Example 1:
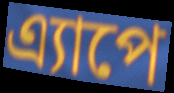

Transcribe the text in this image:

এ্যাপে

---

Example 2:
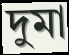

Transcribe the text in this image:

দুমা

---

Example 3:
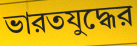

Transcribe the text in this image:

ভারতযুদ্ধের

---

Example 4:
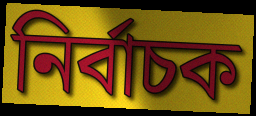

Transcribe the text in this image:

নির্বাচক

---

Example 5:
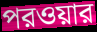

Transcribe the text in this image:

পরওয়ার